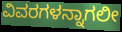
ವಿವರಗಳನ್ನಾಗಲೀ